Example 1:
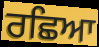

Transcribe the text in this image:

ਰਛਿਆ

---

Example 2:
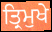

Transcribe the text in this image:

ਤ੍ਰਿਮੁਖੇ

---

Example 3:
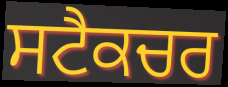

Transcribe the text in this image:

ਸਟੈਕਚਰ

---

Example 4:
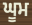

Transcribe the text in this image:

ਘੂਮ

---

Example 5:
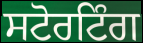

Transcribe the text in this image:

ਸਟੋਰਟਿੰਗ